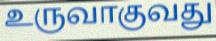
உருவாகுவது